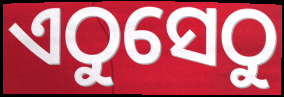
ଏଠୁସେଠୁ